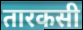
तारकसी